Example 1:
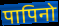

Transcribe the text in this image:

पापिनो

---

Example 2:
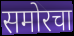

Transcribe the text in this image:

समोरचा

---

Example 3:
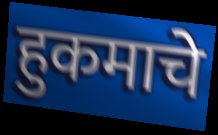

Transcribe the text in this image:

हुकमाचे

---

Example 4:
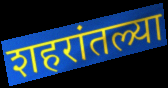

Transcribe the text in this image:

शहरांतल्या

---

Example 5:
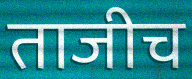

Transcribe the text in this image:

ताजीच